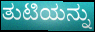
ತುಟಿಯನ್ನು